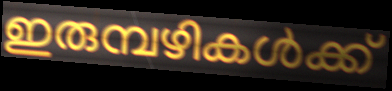
ഇരുമ്പഴികൾക്ക്